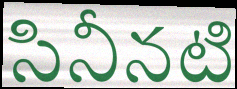
సినీనటి